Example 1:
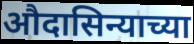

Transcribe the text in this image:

औदासिन्याच्या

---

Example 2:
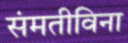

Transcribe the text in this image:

संमतीविना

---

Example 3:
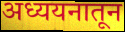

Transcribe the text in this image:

अध्ययनातून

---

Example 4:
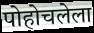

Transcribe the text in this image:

पोहोचलेला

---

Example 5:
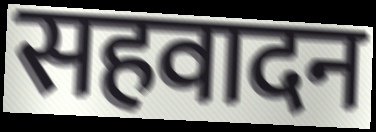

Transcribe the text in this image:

सहवादन